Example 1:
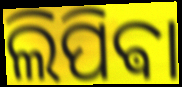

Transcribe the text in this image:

ଲିପିଵା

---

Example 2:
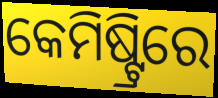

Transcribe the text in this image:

କେମିଷ୍ଟ୍ରିରେ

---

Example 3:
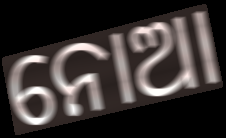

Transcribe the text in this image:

ନୋଆ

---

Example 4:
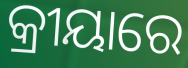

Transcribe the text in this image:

କ୍ରୀୟାରେ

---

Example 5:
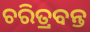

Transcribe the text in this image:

ଚରିତ୍ରବନ୍ତ